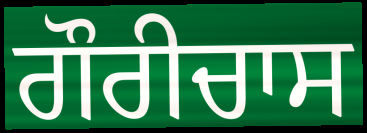
ਗੌਰੀਚਾਸ